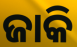
ଜାକି